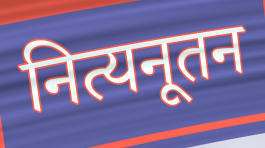
नित्यनूतन